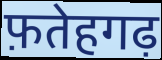
फ़तेहगढ़